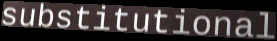
substitutional